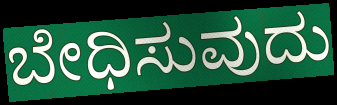
ಬೇಧಿಸುವುದು